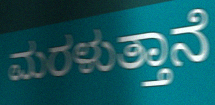
ಮರಳುತ್ತಾನೆ